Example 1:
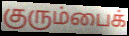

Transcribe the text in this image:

குரும்பைக்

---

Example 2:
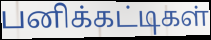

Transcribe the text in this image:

பனிக்கட்டிகள்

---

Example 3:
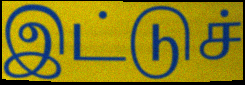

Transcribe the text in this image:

இட்டுச்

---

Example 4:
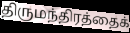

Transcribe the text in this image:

திருமந்திரத்தைக்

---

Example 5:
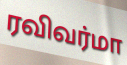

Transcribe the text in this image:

ரவிவர்மா